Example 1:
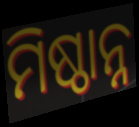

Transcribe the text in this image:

ମିଷ୍ଠାନ୍ନ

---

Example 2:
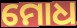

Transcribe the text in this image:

ମୋଧ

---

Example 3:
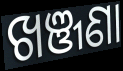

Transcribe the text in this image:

ଖଞ୍ଜଣା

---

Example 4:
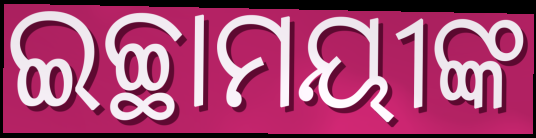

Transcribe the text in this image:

ଇଚ୍ଛାମୟୀଙ୍କ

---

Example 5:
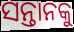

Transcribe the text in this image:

ସନ୍ତାନକୁ